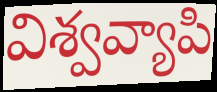
విశ్వవ్యాపి